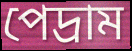
পেদ্রাম